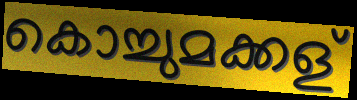
കൊച്ചുമക്കള്